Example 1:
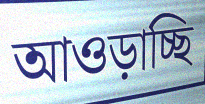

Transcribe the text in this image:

আওড়াচ্ছি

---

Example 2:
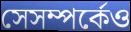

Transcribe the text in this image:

সেসম্পর্কেও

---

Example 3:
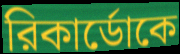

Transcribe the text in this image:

রিকার্ডোকে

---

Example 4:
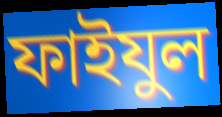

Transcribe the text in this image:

ফাইযুল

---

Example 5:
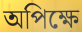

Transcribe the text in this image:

অপিক্ষে